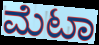
ಮೆಟಾ